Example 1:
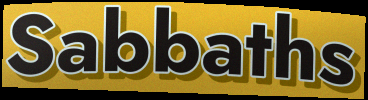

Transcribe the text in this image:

Sabbaths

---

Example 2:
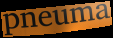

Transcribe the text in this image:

pneuma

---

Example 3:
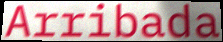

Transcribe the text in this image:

Arribada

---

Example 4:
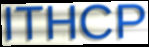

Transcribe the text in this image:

ITHCP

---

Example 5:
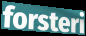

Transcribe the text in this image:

forsteri